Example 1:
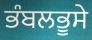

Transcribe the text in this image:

ਭੰਬਲਭੂਸੇ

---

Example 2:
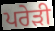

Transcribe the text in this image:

ਪਰੇੜੀ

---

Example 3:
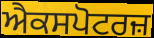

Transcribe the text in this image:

ਐਕਸਪੋਟਰਜ਼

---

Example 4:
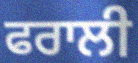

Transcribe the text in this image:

ਫਰਾਲੀ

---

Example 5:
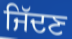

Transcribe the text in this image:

ਜਿੱਦਣ